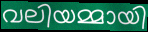
വലിയമ്മായി